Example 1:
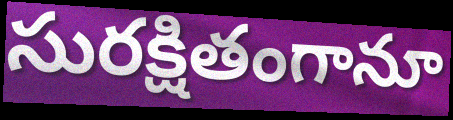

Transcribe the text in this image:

సురక్షితంగానూ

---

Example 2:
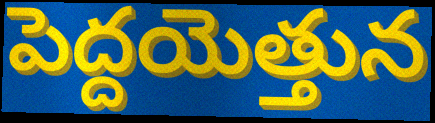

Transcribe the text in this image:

పెద్దయెత్తున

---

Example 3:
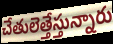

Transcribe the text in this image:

చేతులెత్తేస్తున్నారు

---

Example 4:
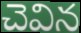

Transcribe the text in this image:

చెవిన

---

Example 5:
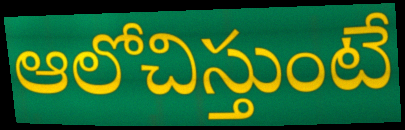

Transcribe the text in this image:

ఆలోచిస్తుంటే